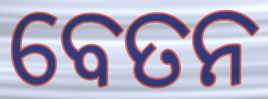
ବେତନ